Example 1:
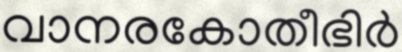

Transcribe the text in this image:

വാനരകോതീഭിർ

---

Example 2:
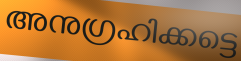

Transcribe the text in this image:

അനുഗ്രഹിക്കട്ടെ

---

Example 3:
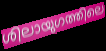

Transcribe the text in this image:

ശിലായുഗത്തിലെ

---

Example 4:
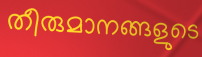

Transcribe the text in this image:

തീരുമാനങ്ങളുടെ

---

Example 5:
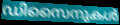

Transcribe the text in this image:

ഡിസൈനുകൾ